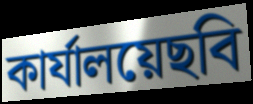
কার্যালয়েছবি